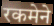
रकमेने